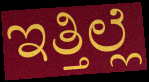
ಇತ್ತಿಲ್ಲೆ